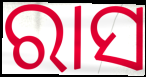
ରାସ